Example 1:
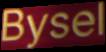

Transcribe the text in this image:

Bysel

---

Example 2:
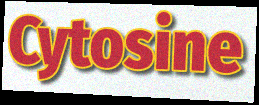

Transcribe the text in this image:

Cytosine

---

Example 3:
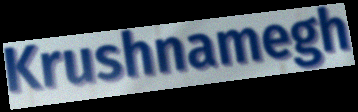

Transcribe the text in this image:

Krushnamegh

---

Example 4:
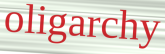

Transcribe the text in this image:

oligarchy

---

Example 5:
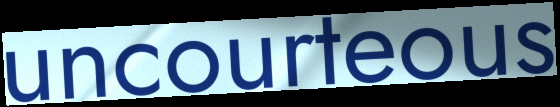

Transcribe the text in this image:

uncourteous